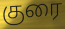
குரை